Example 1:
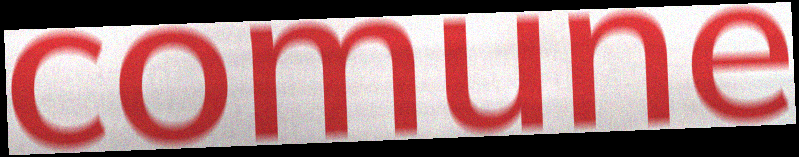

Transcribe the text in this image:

comune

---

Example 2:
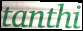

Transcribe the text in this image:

tanthi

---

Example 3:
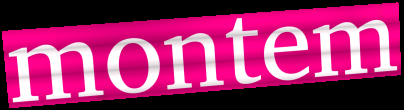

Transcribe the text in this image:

montem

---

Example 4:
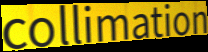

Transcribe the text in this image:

collimation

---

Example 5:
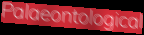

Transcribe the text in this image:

Palaeontological